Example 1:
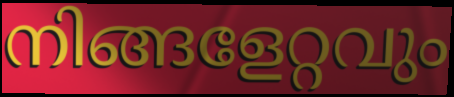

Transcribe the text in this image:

നിങ്ങളേറ്റവും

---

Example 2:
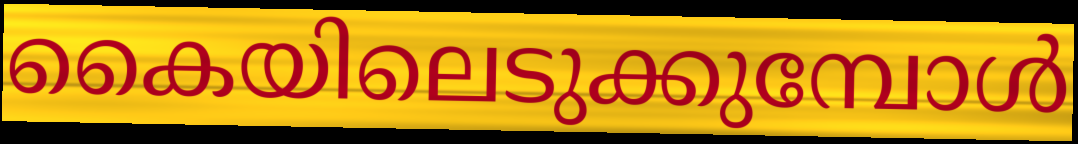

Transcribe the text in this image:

കൈയിലെടുക്കുമ്പോൾ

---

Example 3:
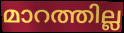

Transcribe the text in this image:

മാറത്തില്ല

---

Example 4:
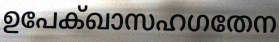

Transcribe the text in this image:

ഉപേക്ഖാസഹഗതേന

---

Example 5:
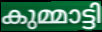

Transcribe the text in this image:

കുമ്മാട്ടി